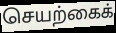
செயற்கைக்